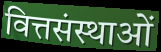
वित्तसंस्थाओं